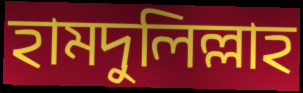
হামদুলিল্লাহ